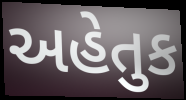
અહેતુક